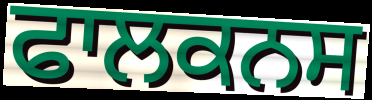
ਫਾਲਕਨਸ